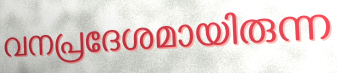
വനപ്രദേശമായിരുന്ന